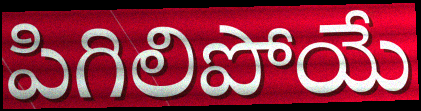
పిగిలిపోయే